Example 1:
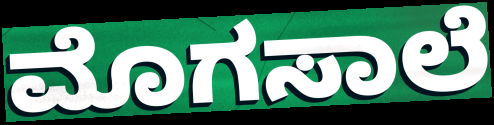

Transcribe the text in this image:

ಮೊಗಸಾಲೆ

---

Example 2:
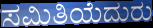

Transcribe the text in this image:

ಸಮಿತಿಯೆದುರು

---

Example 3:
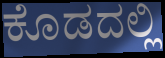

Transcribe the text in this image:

ಕೊಡದಲ್ಲಿ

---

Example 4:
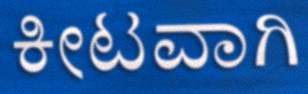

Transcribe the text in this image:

ಕೀಟವಾಗಿ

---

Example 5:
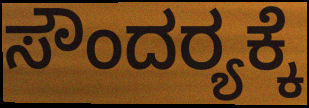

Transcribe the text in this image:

ಸೌಂದರ‍್ಯಕ್ಕೆ